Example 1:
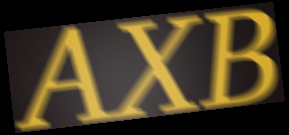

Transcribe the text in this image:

AXB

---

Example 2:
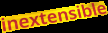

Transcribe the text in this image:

inextensible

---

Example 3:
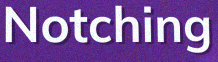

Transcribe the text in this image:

Notching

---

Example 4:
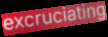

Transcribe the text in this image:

excruciating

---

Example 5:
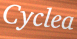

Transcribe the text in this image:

Cyclea